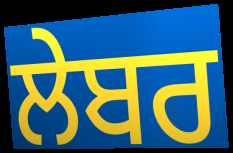
ਲੇਬਰ